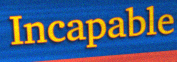
Incapable